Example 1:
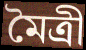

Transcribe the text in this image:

মৈত্ৰী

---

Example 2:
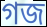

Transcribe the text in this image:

গজ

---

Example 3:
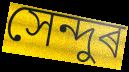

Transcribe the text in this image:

সেন্দুৰ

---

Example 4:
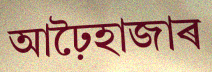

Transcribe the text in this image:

আঢ়ৈহাজাৰ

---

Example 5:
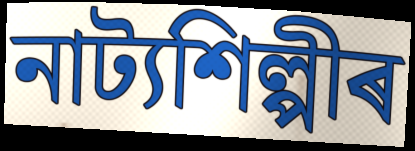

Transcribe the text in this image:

নাট্যশিল্পীৰ